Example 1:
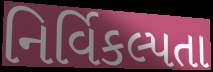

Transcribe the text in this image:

નિર્વિકલ્પતા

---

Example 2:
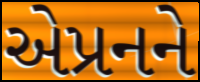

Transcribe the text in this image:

એપ્રનને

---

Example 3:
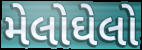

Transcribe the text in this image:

મેલોઘેલો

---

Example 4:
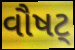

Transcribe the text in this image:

વૌષટ્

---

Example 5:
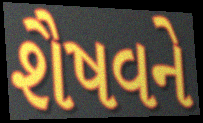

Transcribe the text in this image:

શૈષવને